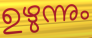
ഉഴുന്നും